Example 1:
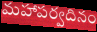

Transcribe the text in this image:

మహాపర్వదినం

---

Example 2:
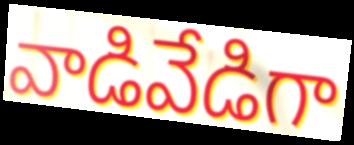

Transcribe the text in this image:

వాడివేడిగా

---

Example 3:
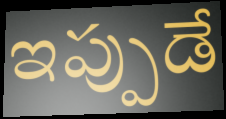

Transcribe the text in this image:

ఇప్పుడే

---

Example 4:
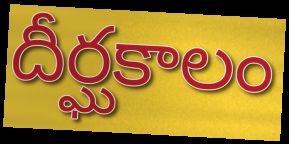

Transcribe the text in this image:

దీర్ఘకాలం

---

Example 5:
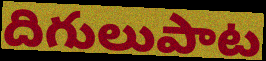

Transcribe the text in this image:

దిగులుపాట